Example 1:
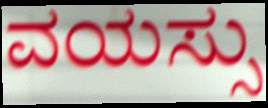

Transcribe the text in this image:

ವಯಸ್ಸು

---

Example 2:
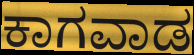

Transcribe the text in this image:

ಕಾಗವಾಡ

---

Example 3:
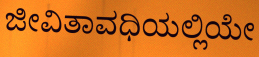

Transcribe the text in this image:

ಜೀವಿತಾವಧಿಯಲ್ಲಿಯೇ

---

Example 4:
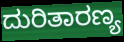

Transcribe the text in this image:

ದುರಿತಾರಣ್ಯ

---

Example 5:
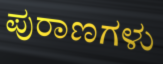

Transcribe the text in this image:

ಪುರಾಣಗಳು